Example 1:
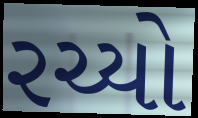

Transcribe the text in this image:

રચ્યો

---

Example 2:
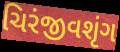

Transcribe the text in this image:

ચિરંજીવશૃંગ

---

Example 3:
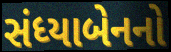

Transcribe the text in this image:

સંધ્યાબેનનો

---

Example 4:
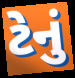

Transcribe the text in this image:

ટેનું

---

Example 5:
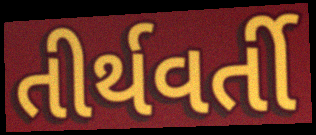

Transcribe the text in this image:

તીર્થવર્તી